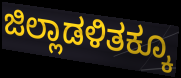
ಜಿಲ್ಲಾಡಳಿತಕ್ಕೂ